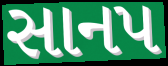
સાનપ